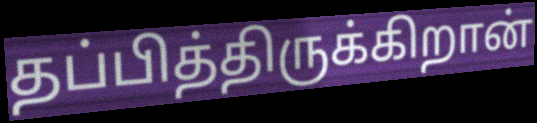
தப்பித்திருக்கிறான்